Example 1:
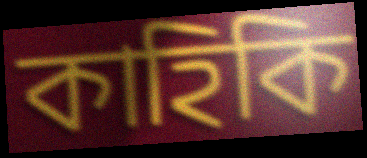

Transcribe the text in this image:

কাহিকি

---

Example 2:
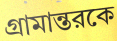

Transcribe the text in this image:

গ্রামান্তরকে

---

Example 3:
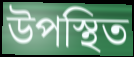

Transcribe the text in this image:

উপস্থিত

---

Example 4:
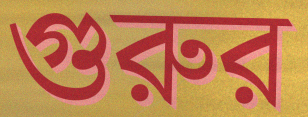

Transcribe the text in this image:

গুরুর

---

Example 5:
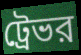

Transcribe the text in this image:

ট্রেভর